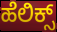
ಹೆಲಿಕ್ಸ್